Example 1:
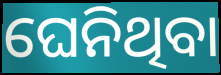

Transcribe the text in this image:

ଘେନିଥିବା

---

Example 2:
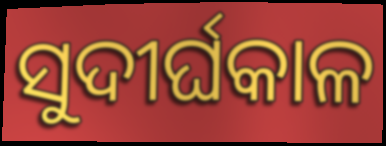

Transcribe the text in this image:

ସୁଦୀର୍ଘକାଳ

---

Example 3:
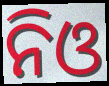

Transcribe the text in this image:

ନିଓ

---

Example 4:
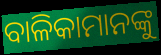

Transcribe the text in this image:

ବାଳିକାମାନଙ୍କୁ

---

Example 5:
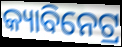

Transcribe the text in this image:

କ୍ୟାବିନେଟ୍ର